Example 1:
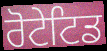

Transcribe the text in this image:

ਰੋਟੇਟਿਡ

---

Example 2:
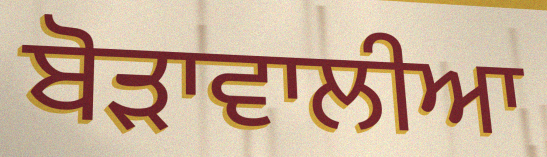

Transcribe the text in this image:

ਬੋੜਾਵਾਲੀਆ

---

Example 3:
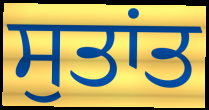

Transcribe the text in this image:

ਸੁਤਾਂਤ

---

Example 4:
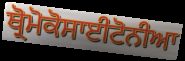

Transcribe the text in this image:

ਥ੍ਰੋਮੋਕੋਸਾਈਟੋਨੀਆ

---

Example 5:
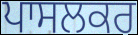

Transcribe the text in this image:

ਪਾਸਲਕਰ